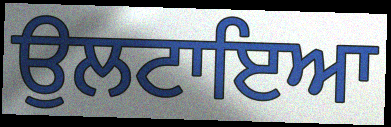
ਉਲਟਾਇਆ